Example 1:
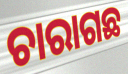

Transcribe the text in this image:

ଚାରାଗଛ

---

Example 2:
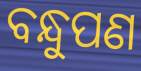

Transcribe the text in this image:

ବନ୍ଧୁପଣ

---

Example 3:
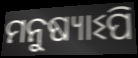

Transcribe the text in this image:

ମନୁଷ୍ୟାଽପି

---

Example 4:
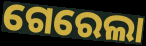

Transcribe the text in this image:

ଗେରେଲା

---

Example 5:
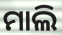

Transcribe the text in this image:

ମାଲି